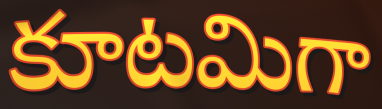
కూటమిగా